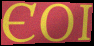
EOI